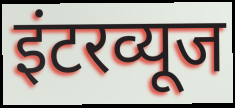
इंटरव्यूज